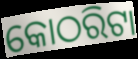
କୋଠରିଟା